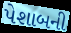
પેશાબની